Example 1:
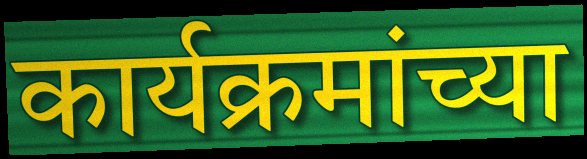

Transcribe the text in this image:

कार्यक्रमांच्या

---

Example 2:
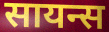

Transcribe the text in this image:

सायन्स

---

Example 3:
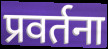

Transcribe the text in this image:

प्रवर्तना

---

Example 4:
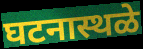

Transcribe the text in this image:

घटनास्थळे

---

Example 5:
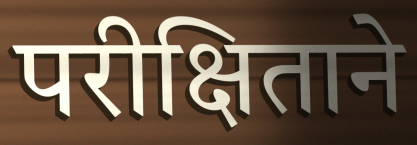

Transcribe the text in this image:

परीक्षिताने